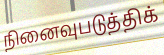
நினைவுபடுத்திக்